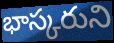
భాస్కరుని